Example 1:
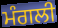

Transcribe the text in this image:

ਮੰਗਲੀ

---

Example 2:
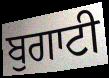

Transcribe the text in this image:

ਬੁਗਾਟੀ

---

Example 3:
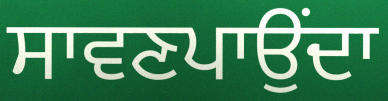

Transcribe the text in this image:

ਸਾਵਣਪਾਉਂਦਾ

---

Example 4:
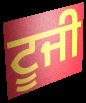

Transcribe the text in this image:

ਟੂਜੀ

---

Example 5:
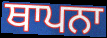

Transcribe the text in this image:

ਥਾਪਨਾ